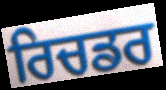
ਰਿਚਡਰ